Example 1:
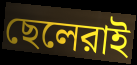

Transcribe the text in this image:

ছেলেরাই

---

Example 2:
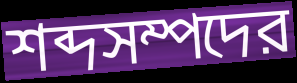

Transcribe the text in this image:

শব্দসম্পদের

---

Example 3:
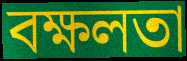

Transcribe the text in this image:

বক্ষলতা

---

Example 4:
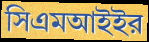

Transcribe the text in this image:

সিএমআইইর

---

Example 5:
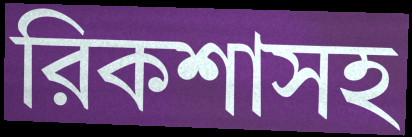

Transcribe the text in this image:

রিকশাসহ